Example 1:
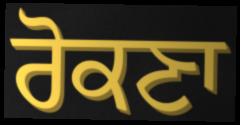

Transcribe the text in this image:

ਰੋਕਣਾ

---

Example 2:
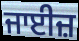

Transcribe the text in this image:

ਜਾਈਜ਼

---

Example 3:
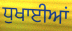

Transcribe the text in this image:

ਧੁਖਾਈਆਂ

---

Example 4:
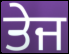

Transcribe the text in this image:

ਤੇਜ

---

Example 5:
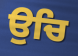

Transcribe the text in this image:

ਉਚਿ